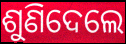
ଶୁଣିଦେଲେ